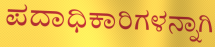
ಪದಾಧಿಕಾರಿಗಳನ್ನಾಗಿ